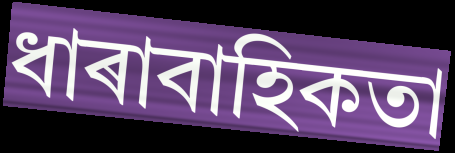
ধাৰাবাহিকতা